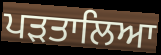
ਪੜਤਾਲਿਆ